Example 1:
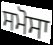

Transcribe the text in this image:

ਸਮੋਸਾ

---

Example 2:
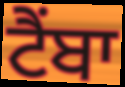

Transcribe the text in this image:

ਟੈਂਬਾ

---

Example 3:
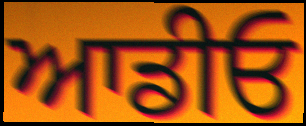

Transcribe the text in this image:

ਆਡੀਓ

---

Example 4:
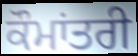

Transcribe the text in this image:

ਕੌਮਾਂਤਰੀ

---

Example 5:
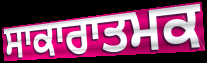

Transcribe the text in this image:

ਸਾਕਾਰਾਤਮਕ